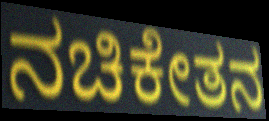
ನಚಿಕೇತನ